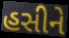
હસીને